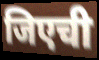
जिएची